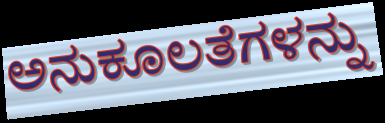
ಅನುಕೂಲತೆಗಳನ್ನು